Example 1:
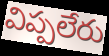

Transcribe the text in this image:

విప్పలేరు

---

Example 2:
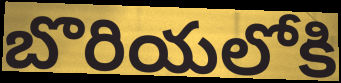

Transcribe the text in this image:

బొరియలోకి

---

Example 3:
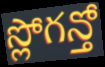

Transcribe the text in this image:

స్లోగన్తో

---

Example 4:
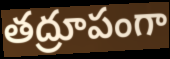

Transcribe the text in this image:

తద్రూపంగా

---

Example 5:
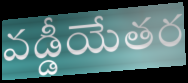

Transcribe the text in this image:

వడ్డీయేతర